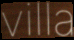
villa